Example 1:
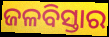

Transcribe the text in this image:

ଜଳବିସ୍ତାର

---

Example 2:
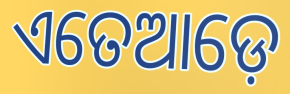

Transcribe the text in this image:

ଏତେଆଡ଼େ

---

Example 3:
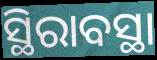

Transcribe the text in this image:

ସ୍ଥିରାବସ୍ଥା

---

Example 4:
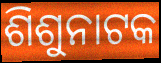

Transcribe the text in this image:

ଶିଶୁନାଟକ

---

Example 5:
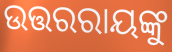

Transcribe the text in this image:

ଉତ୍ତରରାୟଙ୍କୁ